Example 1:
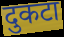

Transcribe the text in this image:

दुकटा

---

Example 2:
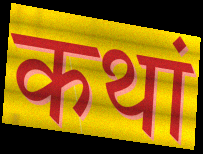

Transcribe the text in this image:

कथां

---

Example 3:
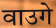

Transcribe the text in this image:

वाउगे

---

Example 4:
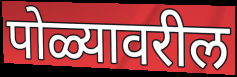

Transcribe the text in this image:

पोळ्यावरील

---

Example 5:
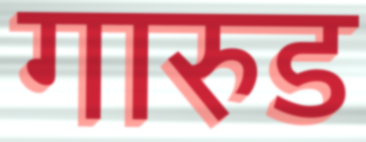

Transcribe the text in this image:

गारुड